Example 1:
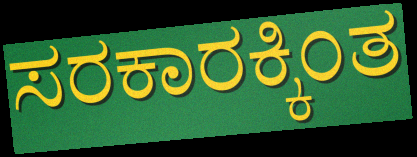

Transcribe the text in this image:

ಸರಕಾರಕ್ಕಿಂತ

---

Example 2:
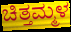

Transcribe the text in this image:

ಚಿತ್ತಮ್ಮಳ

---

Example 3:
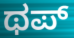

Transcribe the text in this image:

ಥಪ್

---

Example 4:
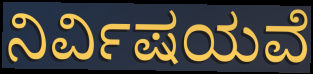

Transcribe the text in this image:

ನಿರ್ವಿಷಯವೆ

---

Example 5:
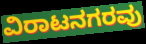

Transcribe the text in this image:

ವಿರಾಟನಗರವು